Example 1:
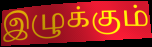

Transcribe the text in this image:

இழுக்கும்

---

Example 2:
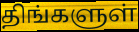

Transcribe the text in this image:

திங்களுள்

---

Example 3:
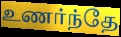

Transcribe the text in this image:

உணர்ந்தே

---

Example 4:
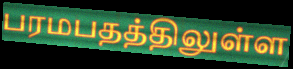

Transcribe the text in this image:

பரமபதத்திலுள்ள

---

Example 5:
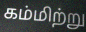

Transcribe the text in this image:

கம்மிற்று